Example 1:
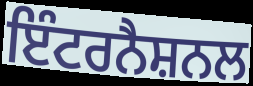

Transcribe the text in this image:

ਇੰਟਰਨੈਸ਼ਨਲ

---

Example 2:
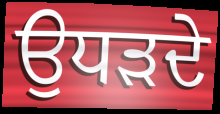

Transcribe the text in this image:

ਉਧੜਦੇ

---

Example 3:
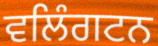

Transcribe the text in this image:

ਵਲਿੰਗਟਨ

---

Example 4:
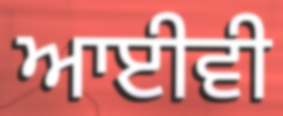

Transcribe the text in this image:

ਆਈਵੀ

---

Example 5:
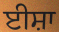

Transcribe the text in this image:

ਈਸ਼ਾ